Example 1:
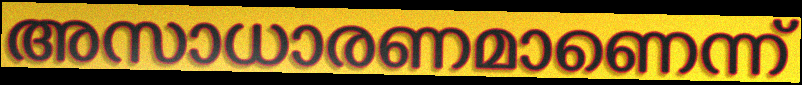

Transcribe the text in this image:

അസാധാരണമാണെന്ന്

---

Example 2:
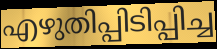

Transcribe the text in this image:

എഴുതിപ്പിടിപ്പിച്ച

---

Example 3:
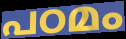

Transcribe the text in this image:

പഠമം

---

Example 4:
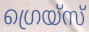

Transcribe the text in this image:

ഗ്രെയ്സ്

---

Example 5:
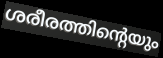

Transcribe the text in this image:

ശരീരത്തിന്റെയും